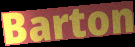
Barton